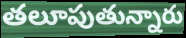
తలూపుతున్నారు